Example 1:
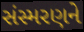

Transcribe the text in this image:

સંસ્મરણને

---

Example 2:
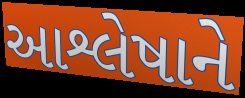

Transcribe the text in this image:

આશ્લેષાને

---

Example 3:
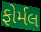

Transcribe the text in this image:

ફોર્મલ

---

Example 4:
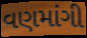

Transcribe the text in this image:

વણમાંગી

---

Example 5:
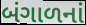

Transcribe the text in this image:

બંગાળનાં